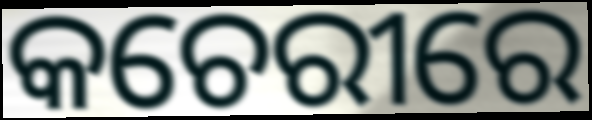
କଚେରୀରେ